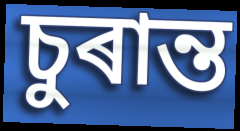
চুৰান্ত